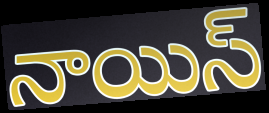
నాయిస్